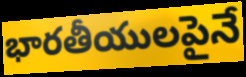
భారతీయులపైనే